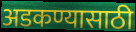
अडकण्यासाठी